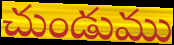
చుండుము